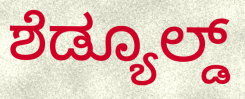
ಶೆಡ್ಯೂಲ್ಡ್